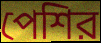
পেশির